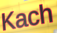
Kach